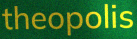
theopolis